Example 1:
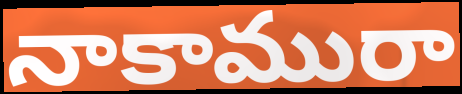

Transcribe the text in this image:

నాకామురా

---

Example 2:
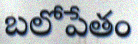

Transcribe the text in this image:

బలోపేతం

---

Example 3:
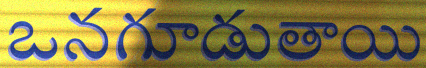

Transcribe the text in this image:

ఒనగూడుతాయి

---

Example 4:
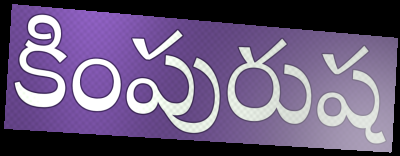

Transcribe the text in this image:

కింపురుష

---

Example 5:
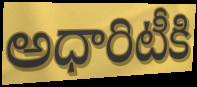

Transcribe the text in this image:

అధారిటీకి